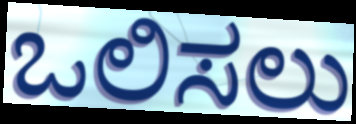
ಒಲಿಸಲು